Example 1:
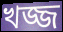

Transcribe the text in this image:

খজ্জ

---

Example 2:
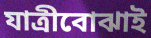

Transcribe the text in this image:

যাত্রীবোঝাই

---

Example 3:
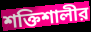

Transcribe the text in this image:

শক্তিশালীর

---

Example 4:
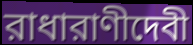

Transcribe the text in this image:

রাধারাণীদেবী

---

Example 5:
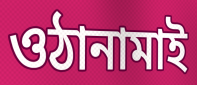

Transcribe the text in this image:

ওঠানামাই